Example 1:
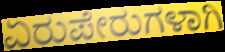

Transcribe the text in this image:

ಏರುಪೇರುಗಳಾಗಿ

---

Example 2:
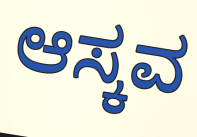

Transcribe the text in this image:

ಆಸ್ಕವ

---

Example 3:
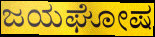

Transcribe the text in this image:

ಜಯಘೋಷ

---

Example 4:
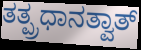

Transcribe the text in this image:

ತತ್ಪ್ರಧಾನತ್ವಾತ್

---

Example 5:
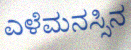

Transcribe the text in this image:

ಎಳೆಮನಸ್ಸಿನ